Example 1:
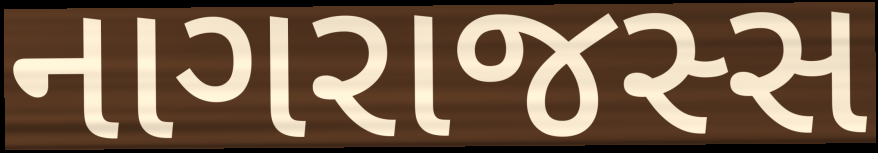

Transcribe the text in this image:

નાગરાજસ્સ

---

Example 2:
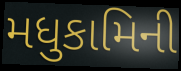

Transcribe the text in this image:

મધુકામિની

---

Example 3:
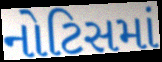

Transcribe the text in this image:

નોટિસમાં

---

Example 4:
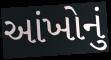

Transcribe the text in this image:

આંખોનું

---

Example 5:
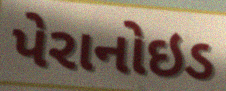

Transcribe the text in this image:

પેરાનોઇડ